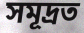
সমূদ্ৰত